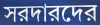
সরদারদের